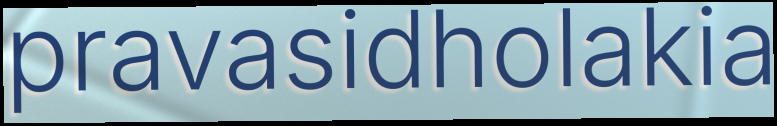
pravasidholakia